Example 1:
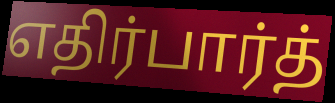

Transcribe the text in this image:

எதிர்பார்த்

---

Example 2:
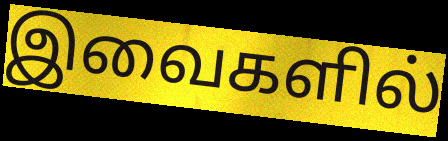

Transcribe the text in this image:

இவைகளில்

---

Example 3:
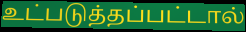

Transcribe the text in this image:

உட்படுத்தப்பட்டால்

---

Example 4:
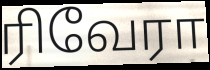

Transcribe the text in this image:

ரிவேரா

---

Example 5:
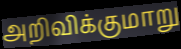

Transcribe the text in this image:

அறிவிக்குமாறு